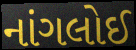
નાંગલોઈ